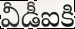
వీడీఐకి